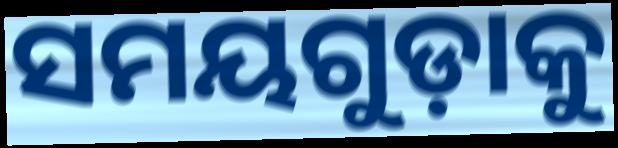
ସମୟଗୁଡ଼ାକୁ